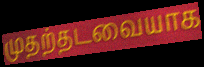
முதற்தடவையாக